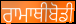
ਰਾਮਾਥੀਬੋਡੀ